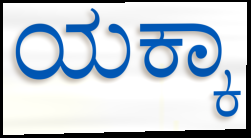
ಯಕ್ಕಾ